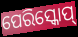
ପେରିସ୍କୋପ୍